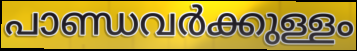
പാണ്ഡവർക്കുള്ളം